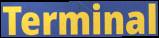
Terminal